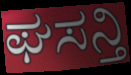
ಘಸನ್ತಿ